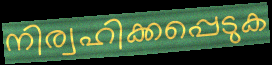
നിര്വഹിക്കപ്പെടുക